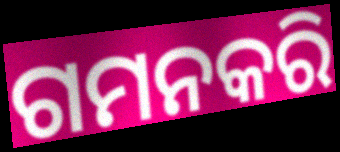
ଗମନକରି